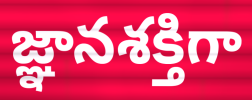
జ్ఞానశక్తిగా